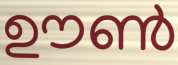
ഊൺ